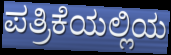
ಪತ್ರಿಕೆಯಲ್ಲಿಯ